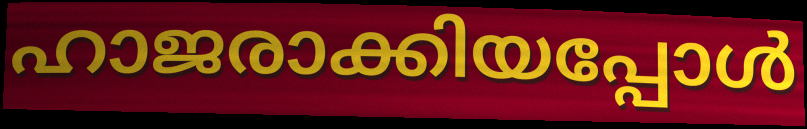
ഹാജരാക്കിയപ്പോൾ